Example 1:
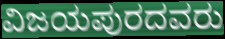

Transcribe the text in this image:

ವಿಜಯಪುರದವರು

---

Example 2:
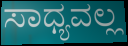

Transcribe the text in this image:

ಸಾಧ್ಯವಲ್ಲ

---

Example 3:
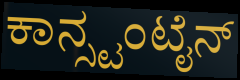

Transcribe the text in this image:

ಕಾನ್ಸ್ಟಂಟೈನ್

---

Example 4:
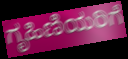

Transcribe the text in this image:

ಗೃಹಿಣಿಯರಿಗೆ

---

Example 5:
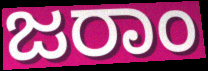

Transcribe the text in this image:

ಜರಾಂ